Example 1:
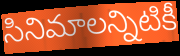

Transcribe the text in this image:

సినిమాలన్నిటికీ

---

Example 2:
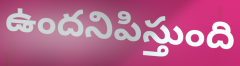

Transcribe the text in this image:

ఉందనిపిస్తుంది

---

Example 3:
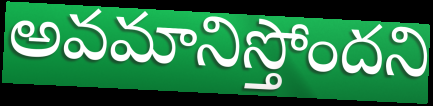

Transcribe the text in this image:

అవమానిస్తోందని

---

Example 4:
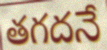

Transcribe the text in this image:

తగదనే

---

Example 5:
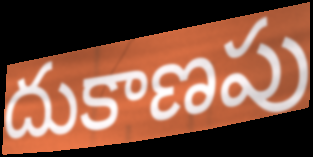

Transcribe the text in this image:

దుకాణపు